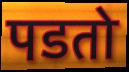
पडतो